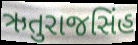
ઋતુરાજસિંહ